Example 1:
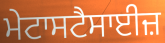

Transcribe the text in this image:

ਮੇਟਾਸਟੈਸਾਈਜ਼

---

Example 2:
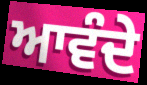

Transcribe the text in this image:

ਆਵੰਦੇ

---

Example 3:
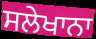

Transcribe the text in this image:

ਸਲੇਖਾਨਾ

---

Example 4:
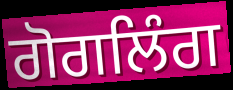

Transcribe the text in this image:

ਗੋਗਲਿੰਗ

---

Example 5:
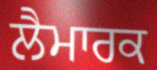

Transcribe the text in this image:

ਲੈਮਾਰਕ